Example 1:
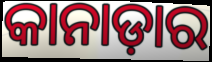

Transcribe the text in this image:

କାନାଡ଼ାର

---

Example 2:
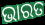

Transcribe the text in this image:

ଭାରତ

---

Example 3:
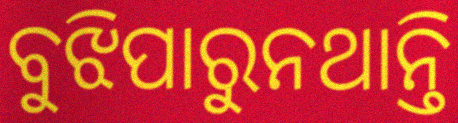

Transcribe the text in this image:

ବୁଝିପାରୁନଥାନ୍ତି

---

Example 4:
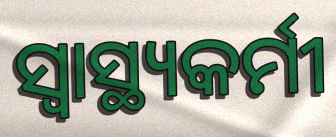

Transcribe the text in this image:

ସ୍ୱାସ୍ଥ୍ୟକର୍ମୀ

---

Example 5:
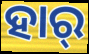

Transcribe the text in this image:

ହାର୍